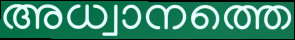
അധ്വാനത്തെ